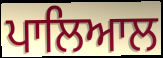
ਪਾਲਿਆਲ